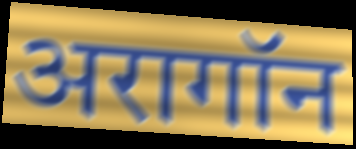
अरागॉन